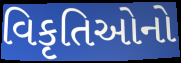
વિકૃતિઓનો